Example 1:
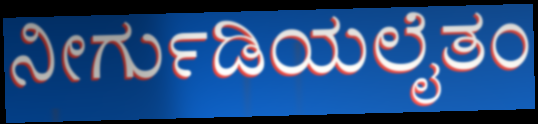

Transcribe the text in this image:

ನೀರ್ಗುಡಿಯಲೈತಂ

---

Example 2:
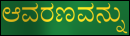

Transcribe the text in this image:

ಆವರಣವನ್ನು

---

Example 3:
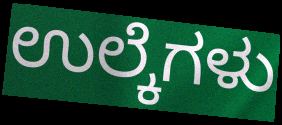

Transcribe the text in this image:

ಉಲ್ಕೆಗಳು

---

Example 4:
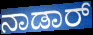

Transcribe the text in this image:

ನಾಡಾರ್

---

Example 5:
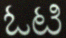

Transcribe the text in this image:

ಓಟಿ